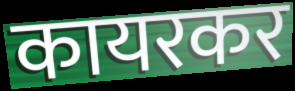
कायरकर